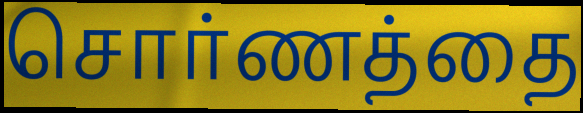
சொர்ணத்தை